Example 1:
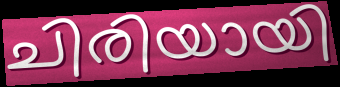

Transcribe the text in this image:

ചിരിയായി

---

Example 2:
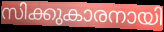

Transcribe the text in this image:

സിക്കുകാരനായി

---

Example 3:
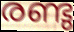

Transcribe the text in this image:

രണ്ടു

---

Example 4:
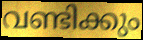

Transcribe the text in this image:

വണ്ടിക്കും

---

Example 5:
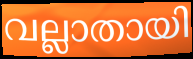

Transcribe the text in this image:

വല്ലാതായി